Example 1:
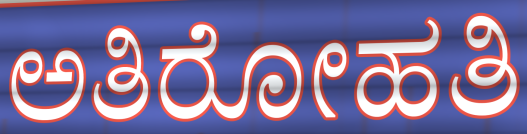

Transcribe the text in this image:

ಅತಿರೋಹತಿ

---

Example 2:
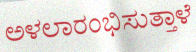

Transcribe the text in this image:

ಅಳಲಾರಂಭಿಸುತ್ತಾಳೆ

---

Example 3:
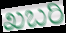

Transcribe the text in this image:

ಖಬರಿ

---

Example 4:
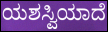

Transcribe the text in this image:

ಯಶಸ್ವಿಯಾದೆ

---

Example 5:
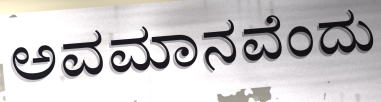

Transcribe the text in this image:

ಅವಮಾನವೆಂದು